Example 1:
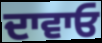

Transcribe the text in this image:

ਦਾਵਾਓ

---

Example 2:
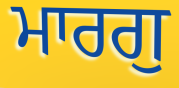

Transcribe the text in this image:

ਮਾਰਗੁ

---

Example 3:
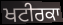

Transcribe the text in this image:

ਖਟੀਰਕਾ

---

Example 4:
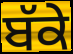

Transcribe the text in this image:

ਬੱਕੇ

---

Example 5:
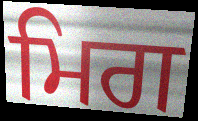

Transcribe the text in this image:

ਮਿਗ